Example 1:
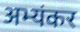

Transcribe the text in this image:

अभ्यंकर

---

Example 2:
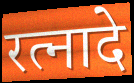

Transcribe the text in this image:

रत्नादे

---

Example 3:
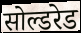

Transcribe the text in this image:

सोल्डरेड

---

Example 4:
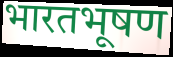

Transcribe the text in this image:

भारतभूषण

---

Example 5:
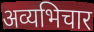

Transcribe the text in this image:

अव्यभिचार